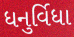
ધનુર્વિધા